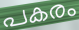
പകരം